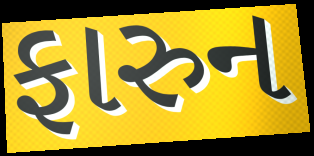
ફારુન